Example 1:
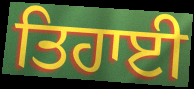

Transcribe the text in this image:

ਤਿਹਾਈ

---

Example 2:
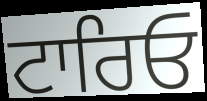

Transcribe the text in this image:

ਟਾਰਿਓ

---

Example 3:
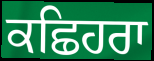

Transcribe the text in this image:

ਕਛਿਹਰਾ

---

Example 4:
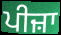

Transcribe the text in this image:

ਪੀਜ਼ਾ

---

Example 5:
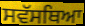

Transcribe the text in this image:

ਸਵੱਸਥਿਆ